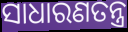
ସାଧାରଣତନ୍ତ୍ର